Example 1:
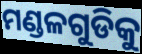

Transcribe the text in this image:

ମଣ୍ଡଳଗୁଡିକୁ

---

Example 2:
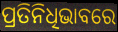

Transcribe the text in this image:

ପ୍ରତିନିଧିଭାବରେ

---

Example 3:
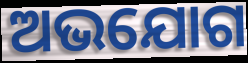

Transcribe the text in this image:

ଅଭଯୋଗ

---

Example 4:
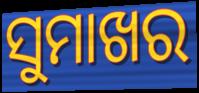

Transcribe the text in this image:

ସୁମାଖର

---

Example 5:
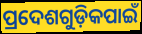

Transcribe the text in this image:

ପ୍ରଦେଶଗୁଡ଼ିକପାଇଁ